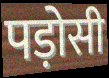
पड़ोसी